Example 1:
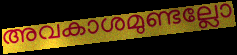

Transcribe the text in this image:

അവകാശമുണ്ടല്ലോ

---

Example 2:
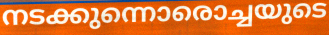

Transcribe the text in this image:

നടക്കുന്നൊരൊച്ചയുടെ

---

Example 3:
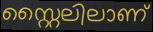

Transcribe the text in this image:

സ്റ്റൈലിലാണ്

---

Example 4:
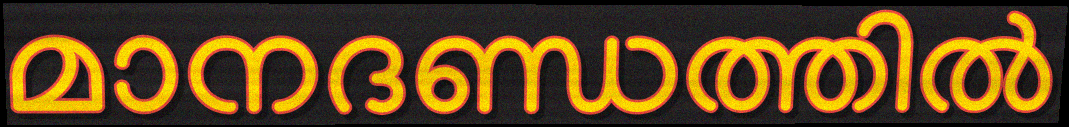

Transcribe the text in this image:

മാനദണ്ഡത്തിൽ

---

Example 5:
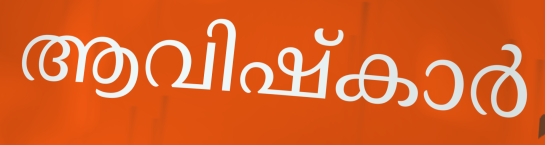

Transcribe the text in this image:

ആവിഷ്കാർ